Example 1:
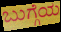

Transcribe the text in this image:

ಬುಗ್ಗೆಯ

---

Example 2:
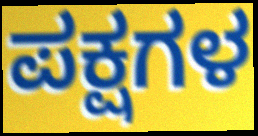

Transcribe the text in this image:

ಪಕ್ಷಗಳ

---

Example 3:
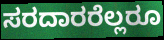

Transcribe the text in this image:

ಸರದಾರರೆಲ್ಲರೂ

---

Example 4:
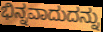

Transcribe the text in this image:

ಭಿನ್ನವಾದುದನ್ನು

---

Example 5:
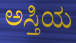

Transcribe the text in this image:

ಅಸ್ತಿಯ